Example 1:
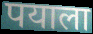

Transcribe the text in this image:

पयाला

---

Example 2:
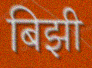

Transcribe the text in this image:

बिझी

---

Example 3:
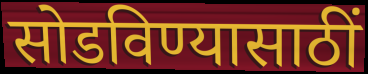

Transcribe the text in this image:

सोडविण्यासाठीं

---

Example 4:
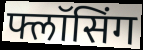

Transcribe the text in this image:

फ्लॉसिंग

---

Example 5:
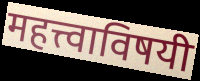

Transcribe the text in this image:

महत्त्वाविषयी